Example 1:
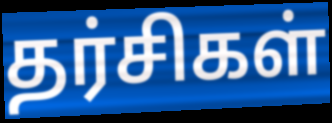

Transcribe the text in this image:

தர்சிகள்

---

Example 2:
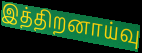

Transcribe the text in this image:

இத்திறனாய்வு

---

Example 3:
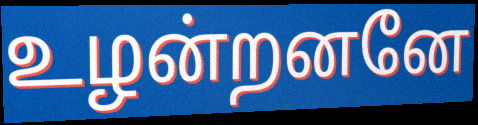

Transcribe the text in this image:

உழன்றனனே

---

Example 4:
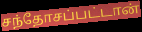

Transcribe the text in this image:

சந்தோசப்பட்டான்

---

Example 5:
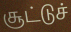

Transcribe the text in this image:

சூட்டுச்